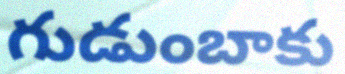
గుడుంబాకు